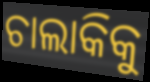
ଚାଲାକିକୁ